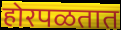
होरपळतात